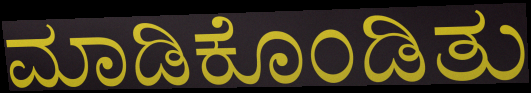
ಮಾಡಿಕೊಂಡಿತು